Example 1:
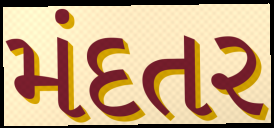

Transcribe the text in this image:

મંદતર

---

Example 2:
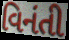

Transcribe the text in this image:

વિનંતી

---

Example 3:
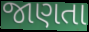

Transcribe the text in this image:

જાણતા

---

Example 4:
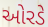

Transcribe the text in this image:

ઓરડે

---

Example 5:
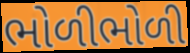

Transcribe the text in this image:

ભોળીભોળી